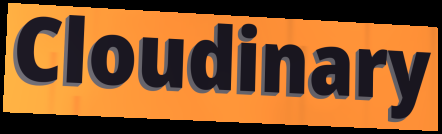
Cloudinary